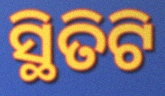
ସ୍ଥିତିଟି